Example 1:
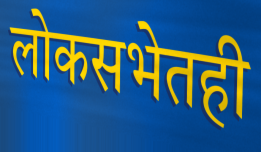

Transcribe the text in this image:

लोकसभेतही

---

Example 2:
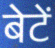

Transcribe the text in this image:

बेटें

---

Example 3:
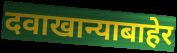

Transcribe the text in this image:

दवाखान्याबाहेर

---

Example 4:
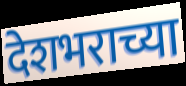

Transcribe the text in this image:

देशभराच्या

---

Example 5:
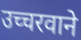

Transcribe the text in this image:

उच्चरवाने